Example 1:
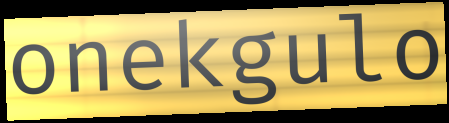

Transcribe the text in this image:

onekgulo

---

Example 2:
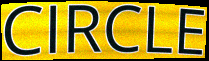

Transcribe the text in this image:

CIRCLE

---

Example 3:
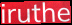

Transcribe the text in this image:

iruthe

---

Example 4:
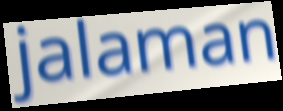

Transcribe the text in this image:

jalaman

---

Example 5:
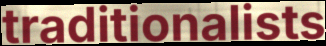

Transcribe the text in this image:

traditionalists